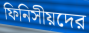
ফিনিসীয়দের